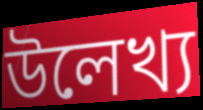
উলেখ্য